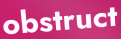
obstruct